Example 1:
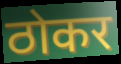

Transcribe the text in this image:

ठोकर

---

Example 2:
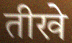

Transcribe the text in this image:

तीखे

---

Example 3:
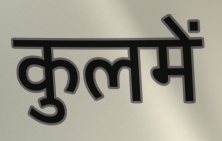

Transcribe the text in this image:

कुलमें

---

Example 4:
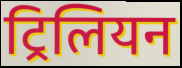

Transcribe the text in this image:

ट्रिलियन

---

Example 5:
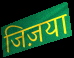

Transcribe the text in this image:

जिज़या